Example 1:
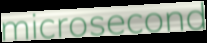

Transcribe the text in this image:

microsecond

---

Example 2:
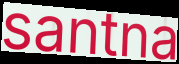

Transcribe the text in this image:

santna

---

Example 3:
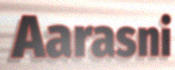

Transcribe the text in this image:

Aarasni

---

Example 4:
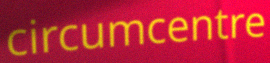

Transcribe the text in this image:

circumcentre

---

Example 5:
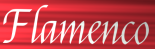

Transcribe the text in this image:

Flamenco